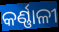
କର୍ଣ୍ଣାଳୀ